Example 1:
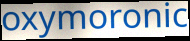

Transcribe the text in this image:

oxymoronic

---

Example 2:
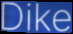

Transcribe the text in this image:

Dike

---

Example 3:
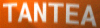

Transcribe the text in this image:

TANTEA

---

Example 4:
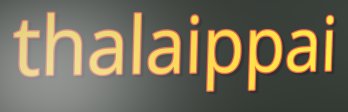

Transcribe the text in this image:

thalaippai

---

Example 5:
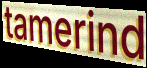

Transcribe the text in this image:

tamerind